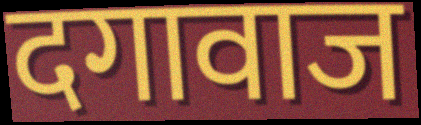
दगावाज